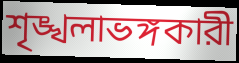
শৃঙ্খলাভঙ্গকারী